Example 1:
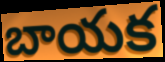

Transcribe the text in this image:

బాయక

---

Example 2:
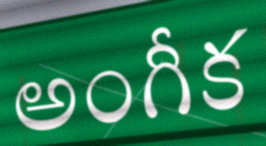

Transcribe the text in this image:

అంగీక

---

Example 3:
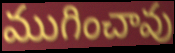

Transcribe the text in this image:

ముగించావు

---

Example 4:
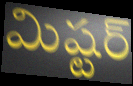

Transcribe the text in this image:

మిష్టర్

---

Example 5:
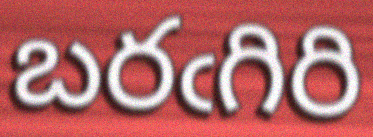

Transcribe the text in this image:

బరఁగిరి